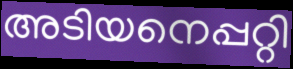
അടിയനെപ്പറ്റി